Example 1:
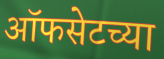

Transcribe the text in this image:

ऑफसेटच्या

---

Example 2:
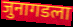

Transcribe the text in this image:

जुनागडला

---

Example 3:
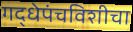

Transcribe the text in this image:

गद्धेपंचविशीचा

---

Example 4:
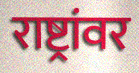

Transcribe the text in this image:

राष्ट्रांवर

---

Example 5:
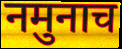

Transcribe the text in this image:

नमुनाच